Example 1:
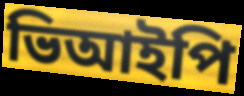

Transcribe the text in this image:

ভিআইপি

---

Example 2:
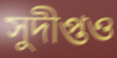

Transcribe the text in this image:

সুদীপ্তও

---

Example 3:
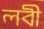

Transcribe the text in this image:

লবী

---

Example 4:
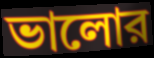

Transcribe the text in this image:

ভালোর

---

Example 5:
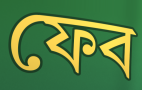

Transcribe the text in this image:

ফেব